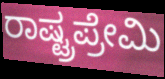
ರಾಷ್ಟ್ರಪ್ರೇಮಿ